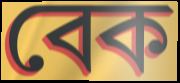
বেক